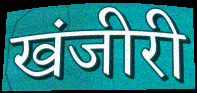
खंजीरी